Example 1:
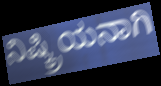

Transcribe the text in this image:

ನಿಷ್ಕ್ರಿಯನಾಗಿ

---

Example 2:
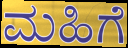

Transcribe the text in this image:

ಮಹಿಗೆ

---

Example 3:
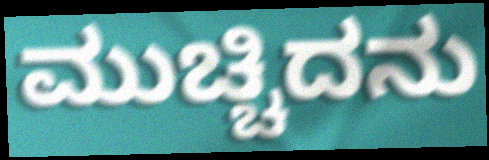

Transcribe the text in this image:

ಮುಚ್ಚಿದನು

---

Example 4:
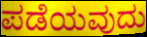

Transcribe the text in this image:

ಪಡೆಯವುದು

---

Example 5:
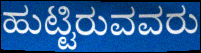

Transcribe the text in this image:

ಹುಟ್ಟಿರುವವರು